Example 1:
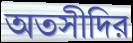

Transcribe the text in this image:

অতসীদির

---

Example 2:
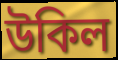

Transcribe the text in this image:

উকিল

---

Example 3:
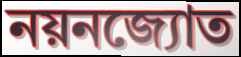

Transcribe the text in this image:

নয়নজ্যোত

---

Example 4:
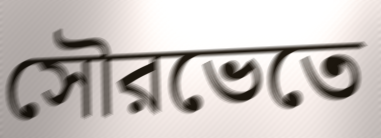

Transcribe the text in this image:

সৌরভেতে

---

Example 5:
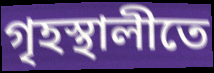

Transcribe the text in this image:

গৃহস্থালীতে